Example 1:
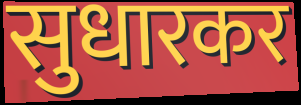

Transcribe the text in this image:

सुधारकर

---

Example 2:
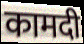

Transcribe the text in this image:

कामदी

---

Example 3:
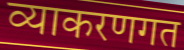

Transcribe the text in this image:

व्याकरणगत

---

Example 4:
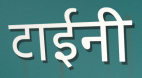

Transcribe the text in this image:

टाईनी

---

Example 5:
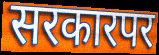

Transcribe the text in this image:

सरकारपर